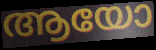
ആയോ